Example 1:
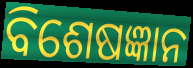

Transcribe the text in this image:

ବିଶେଷଜ୍ଞାନ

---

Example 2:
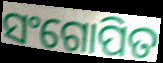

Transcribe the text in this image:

ସଂଗୋପିତ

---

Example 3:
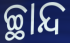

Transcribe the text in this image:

ଚ୍ଛାନ୍ଦ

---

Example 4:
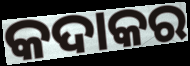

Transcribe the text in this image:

କଦାକର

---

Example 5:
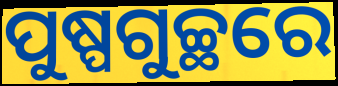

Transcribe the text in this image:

ପୁଷ୍ପଗୁଚ୍ଛରେ